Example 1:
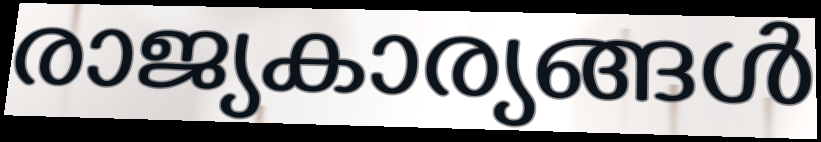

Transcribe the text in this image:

രാജ്യകാര്യങ്ങൾ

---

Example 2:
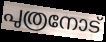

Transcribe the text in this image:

പുത്രനോട്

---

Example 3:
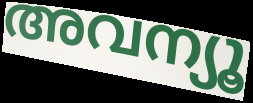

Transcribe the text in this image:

അവന്യൂ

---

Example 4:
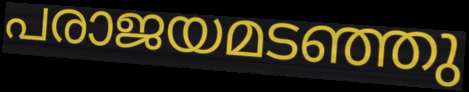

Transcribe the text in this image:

പരാജയമടഞ്ഞു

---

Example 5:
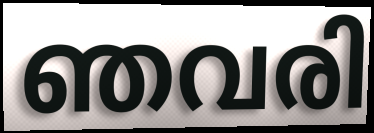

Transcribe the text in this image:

ഞവരി